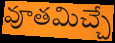
వూతమిచ్చే